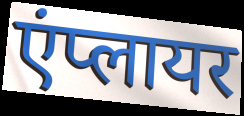
एंप्लायर